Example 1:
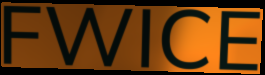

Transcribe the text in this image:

FWICE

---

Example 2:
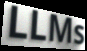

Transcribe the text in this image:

LLMs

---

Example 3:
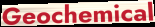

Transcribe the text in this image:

Geochemical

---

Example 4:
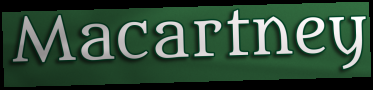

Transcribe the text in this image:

Macartney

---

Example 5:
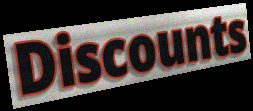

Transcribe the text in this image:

Discounts